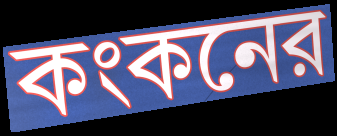
কংকনের